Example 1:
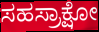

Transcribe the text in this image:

ಸಹಸ್ರಾಕ್ಷೋ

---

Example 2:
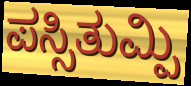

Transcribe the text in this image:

ಪಸ್ಸಿತುಮ್ಪಿ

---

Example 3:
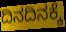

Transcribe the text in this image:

ದಿನದಿನಕ್ಕೆ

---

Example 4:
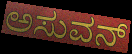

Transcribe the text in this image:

ಅಸುವನ್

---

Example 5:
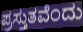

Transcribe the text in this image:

ಪ್ರಸ್ತುತವೆಂದು